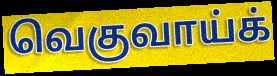
வெகுவாய்க்